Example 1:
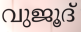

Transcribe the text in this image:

വുജൂദ്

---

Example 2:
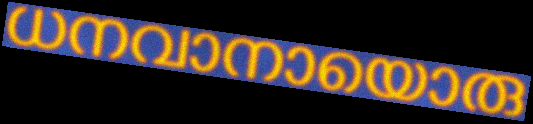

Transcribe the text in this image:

ധനവാനായൊരു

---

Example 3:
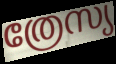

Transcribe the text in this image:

ത്രേസ്യ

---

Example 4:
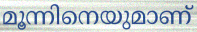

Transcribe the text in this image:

മൂന്നിനെയുമാണ്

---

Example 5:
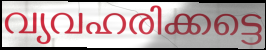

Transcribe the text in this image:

വ്യവഹരിക്കട്ടെ